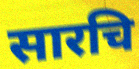
सारचि